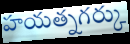
హయత్నగర్కు